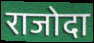
राजोदा